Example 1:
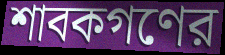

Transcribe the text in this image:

শাবকগণের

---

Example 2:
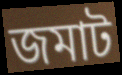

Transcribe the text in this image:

জমাট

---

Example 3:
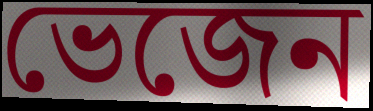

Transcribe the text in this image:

ভেজেন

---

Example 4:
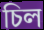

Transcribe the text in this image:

চিল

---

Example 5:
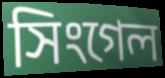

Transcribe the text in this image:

সিংগেল